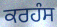
ਕਰਹੰਸ